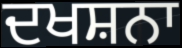
ਦਖਸ਼ਨਾ